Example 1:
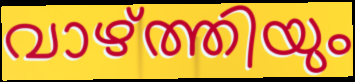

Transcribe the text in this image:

വാഴ്ത്തിയും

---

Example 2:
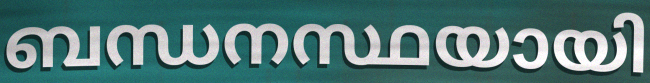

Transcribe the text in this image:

ബന്ധനസ്ഥയായി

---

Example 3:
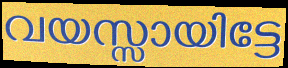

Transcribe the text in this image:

വയസ്സായിട്ടേ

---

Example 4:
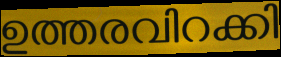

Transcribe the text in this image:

ഉത്തരവിറക്കി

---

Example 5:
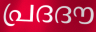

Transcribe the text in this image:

പ്രദദൗ